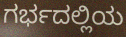
ಗರ್ಭದಲ್ಲಿಯ